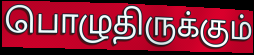
பொழுதிருக்கும்